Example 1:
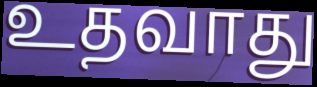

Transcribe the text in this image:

உதவாது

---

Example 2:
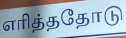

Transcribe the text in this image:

எரித்ததோடு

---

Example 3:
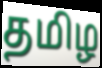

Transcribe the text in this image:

தமிழ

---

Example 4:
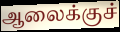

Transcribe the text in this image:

ஆலைக்குச்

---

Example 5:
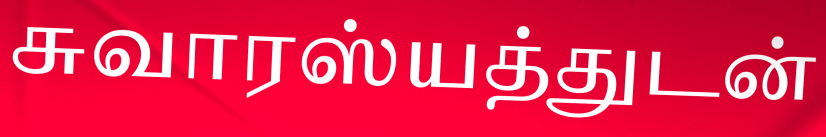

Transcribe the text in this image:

சுவாரஸ்யத்துடன்